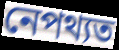
নেপথ্যত